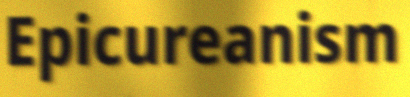
Epicureanism